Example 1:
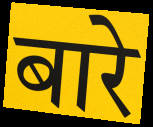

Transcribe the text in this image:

बारे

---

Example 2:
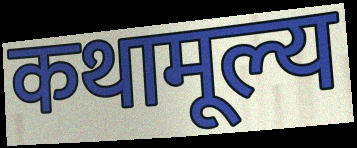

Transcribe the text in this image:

कथामूल्य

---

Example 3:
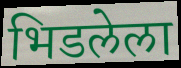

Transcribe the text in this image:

भिडलेला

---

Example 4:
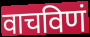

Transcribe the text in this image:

वाचविणं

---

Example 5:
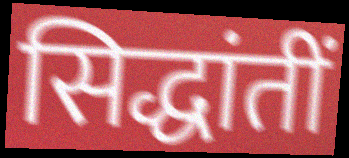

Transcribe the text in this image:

सिद्धांतीं